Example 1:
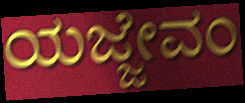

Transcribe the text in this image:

ಯಜ್ಜೇವಂ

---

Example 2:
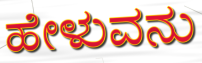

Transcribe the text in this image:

ಹೇಳುವನು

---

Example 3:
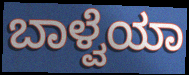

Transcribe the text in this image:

ಬಾಳ್ವೆಯಾ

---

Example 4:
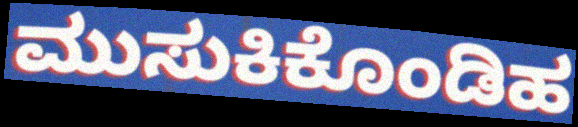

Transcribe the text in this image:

ಮುಸುಕಿಕೊಂಡಿಹ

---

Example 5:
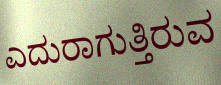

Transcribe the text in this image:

ಎದುರಾಗುತ್ತಿರುವ